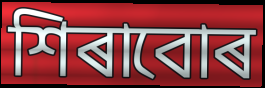
শিৰাবোৰ